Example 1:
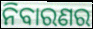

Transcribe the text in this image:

ନିବାରଣର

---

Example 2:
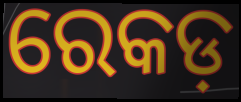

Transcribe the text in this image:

ରେକଡ଼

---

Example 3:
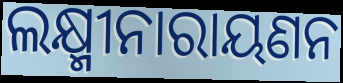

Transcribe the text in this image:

ଲକ୍ଷ୍ମୀନାରାୟଣନ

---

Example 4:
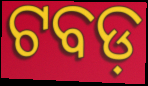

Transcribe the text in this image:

ଟବଡ଼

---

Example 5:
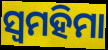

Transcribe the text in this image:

ସ୍ୱମହିମା